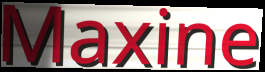
Maxine